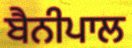
ਬੈਨੀਪਾਲ